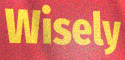
Wisely